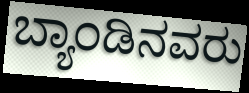
ಬ್ಯಾಂಡಿನವರು